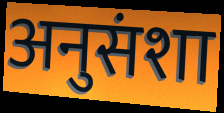
अनुसंशा